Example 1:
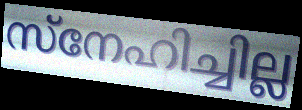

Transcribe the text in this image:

സ്നേഹിച്ചില്ല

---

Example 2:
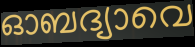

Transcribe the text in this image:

ഓബദ്യാവെ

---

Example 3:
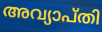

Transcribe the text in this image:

അവ്യാപ്തി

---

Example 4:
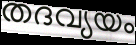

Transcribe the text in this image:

തദവ്യയം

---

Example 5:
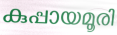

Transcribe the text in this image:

കുപ്പായമൂരി